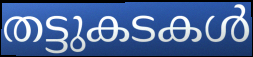
തട്ടുകടകൾ